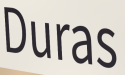
Duras